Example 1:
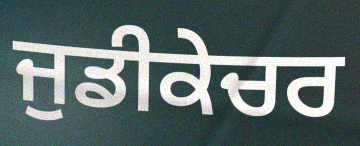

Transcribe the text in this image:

ਜੁਡੀਕੇਚਰ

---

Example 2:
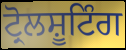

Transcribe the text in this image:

ਟ੍ਰੋਲਸ਼ੂਟਿੰਗ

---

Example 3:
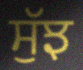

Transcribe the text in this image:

ਸੁੱਝ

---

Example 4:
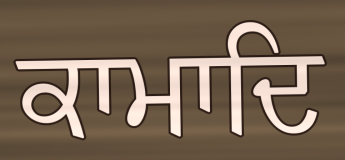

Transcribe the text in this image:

ਕਾਮਾਦਿ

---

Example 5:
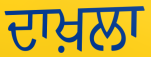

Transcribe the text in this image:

ਦਾਖ਼ਲਾ